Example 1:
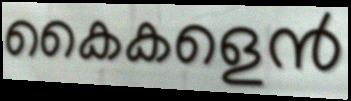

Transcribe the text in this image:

കൈകളെൻ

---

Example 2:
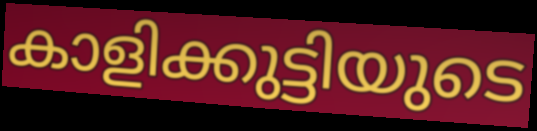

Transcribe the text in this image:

കാളിക്കുട്ടിയുടെ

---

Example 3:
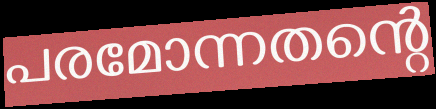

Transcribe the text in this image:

പരമോന്നതന്റെ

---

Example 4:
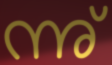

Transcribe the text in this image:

ന്നു്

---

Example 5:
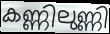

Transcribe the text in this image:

കണ്ണിലുണ്ണി